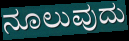
ನೂಲುವುದು